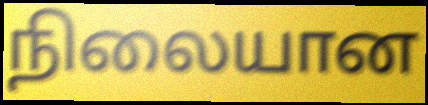
நிலையான